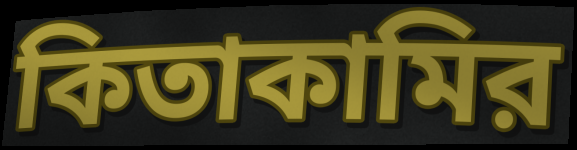
কিতাকামির